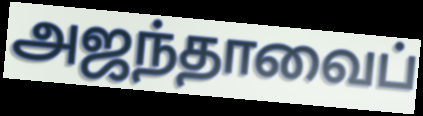
அஜந்தாவைப்